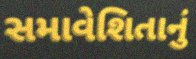
સમાવેશિતાનું